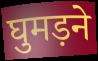
घुमड़ने